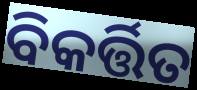
ବିକର୍ତ୍ତିତ